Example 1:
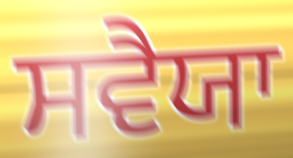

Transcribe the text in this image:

ਸਵੈਯਾ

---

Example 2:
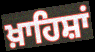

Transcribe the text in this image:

ਖ਼ਾਹਿਸ਼ਾਂ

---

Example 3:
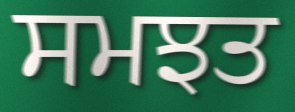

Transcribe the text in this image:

ਸਮਝਤ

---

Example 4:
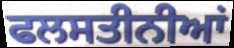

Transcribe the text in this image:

ਫਲਸਤੀਨੀਆਂ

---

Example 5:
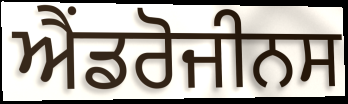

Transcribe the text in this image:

ਐਂਡਰੋਜੀਨਸ